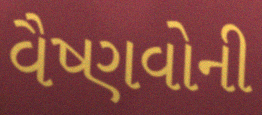
વૈષ્ણવોની